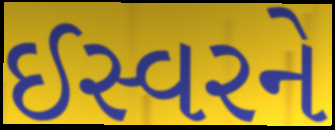
ઈસ્વરને